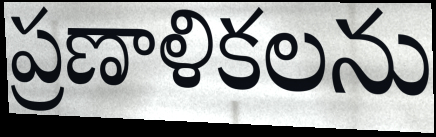
ప్రణాళికలను